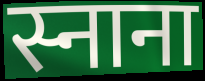
स्नाना